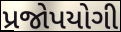
પ્રજોપયોગી